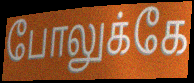
போலுக்கே